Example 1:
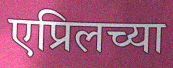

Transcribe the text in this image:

एप्रिलच्या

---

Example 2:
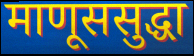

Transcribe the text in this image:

माणूससुद्धा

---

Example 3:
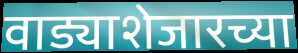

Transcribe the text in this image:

वाड्याशेजारच्या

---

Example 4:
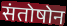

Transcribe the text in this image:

संतोषोन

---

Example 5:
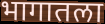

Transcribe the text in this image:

भागातला